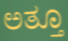
ಅತ್ತೂ